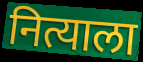
नित्याला